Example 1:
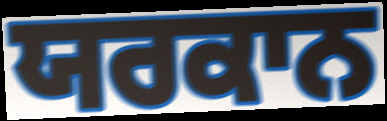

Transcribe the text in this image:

ਯਰਕਾਨ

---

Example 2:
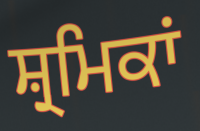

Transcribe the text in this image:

ਸ਼੍ਰਮਿਕਾਂ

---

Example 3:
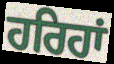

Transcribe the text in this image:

ਹਰਿਹਾਂ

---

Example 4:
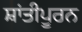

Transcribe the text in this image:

ਸ਼ਾਂਤੀਪੂਰਨ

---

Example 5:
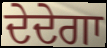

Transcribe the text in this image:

ਦੇਦੇਗਾ